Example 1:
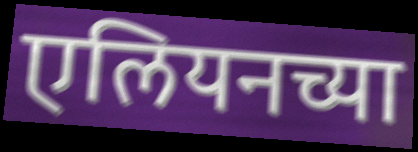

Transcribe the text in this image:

एलियनच्या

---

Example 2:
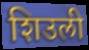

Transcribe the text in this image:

शिउली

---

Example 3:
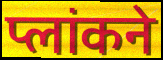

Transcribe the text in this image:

प्लांकने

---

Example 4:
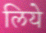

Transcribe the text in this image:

लिये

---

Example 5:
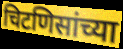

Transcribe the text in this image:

चिटणिसांच्या